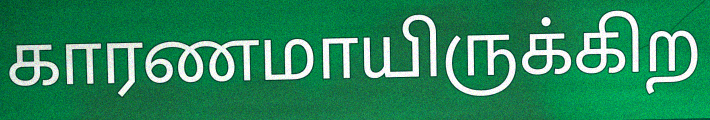
காரணமாயிருக்கிற